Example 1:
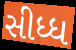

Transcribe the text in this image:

સીધ્ધ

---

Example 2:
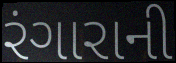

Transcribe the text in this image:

રંગારાની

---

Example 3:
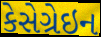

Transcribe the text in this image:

કેસેગ્રેઇન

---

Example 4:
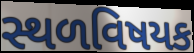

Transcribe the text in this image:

સ્થળવિષયક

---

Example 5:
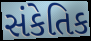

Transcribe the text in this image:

સંકેતિક